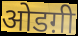
ओडग़ी